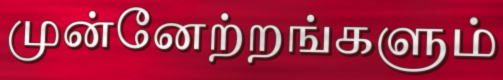
முன்னேற்றங்களும்